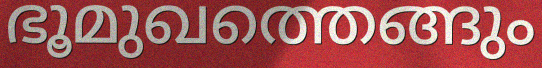
ഭൂമുഖത്തെങ്ങും